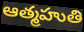
ఆత్మహుతి